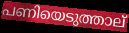
പണിയെടുത്താല്